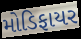
મોડિફાયર